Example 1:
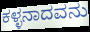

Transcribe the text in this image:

ಕಳ್ಳನಾದವನು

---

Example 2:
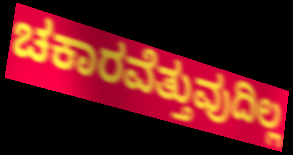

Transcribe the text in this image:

ಚಕಾರವೆತ್ತುವುದಿಲ್ಲ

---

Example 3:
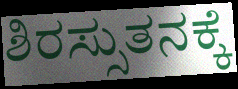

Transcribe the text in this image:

ಶಿರಸ್ಸುತನಕ್ಕೆ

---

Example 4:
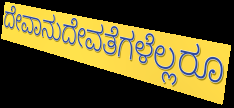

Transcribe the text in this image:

ದೇವಾನುದೇವತೆಗಳೆಲ್ಲರೂ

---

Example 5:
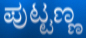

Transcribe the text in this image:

ಪುಟ್ಟಣ್ಣ